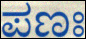
ಪಣಃ